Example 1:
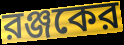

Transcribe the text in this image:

রঞ্জকের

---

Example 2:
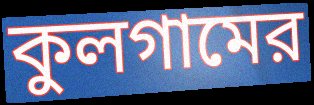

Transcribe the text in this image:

কুলগামের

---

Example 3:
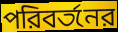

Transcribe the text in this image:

পরিবর্তনের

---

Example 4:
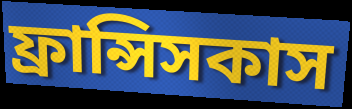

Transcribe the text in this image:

ফ্রান্সিসকাস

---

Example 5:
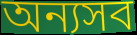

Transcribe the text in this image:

অন্যসব